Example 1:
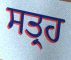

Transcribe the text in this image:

ਸਤ੍ਰਹ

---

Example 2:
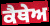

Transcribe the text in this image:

ਕੈਥੇਅ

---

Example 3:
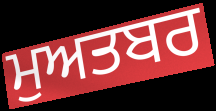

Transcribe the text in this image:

ਮੁਅਤਬਰ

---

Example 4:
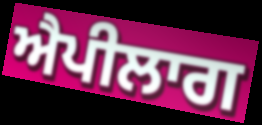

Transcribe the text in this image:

ਐਪੀਲਾਗ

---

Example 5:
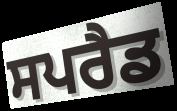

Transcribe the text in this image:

ਸਪਰੈਡ